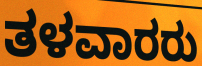
ತಳವಾರರು